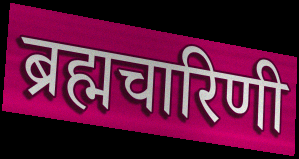
ब्रह्मचारिणी